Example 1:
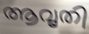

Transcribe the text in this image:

ആവൃതി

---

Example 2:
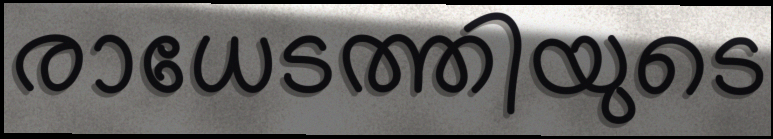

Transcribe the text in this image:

രാധേടത്തിയുടെ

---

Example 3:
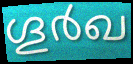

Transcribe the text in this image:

ഗൂർഖ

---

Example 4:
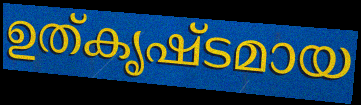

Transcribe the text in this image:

ഉത്കൃഷ്ടമായ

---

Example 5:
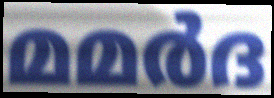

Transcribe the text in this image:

മമർദ